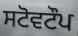
ਸਟੋਵਟੌਪ